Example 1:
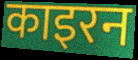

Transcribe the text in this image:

काइरन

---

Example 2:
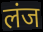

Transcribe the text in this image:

लंज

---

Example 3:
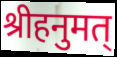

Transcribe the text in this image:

श्रीहनुमत्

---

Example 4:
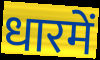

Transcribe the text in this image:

धारमें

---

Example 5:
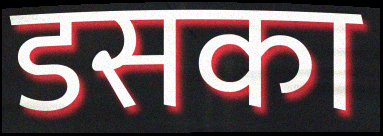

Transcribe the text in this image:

डसका